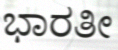
ಭಾರತೀ